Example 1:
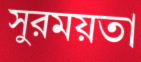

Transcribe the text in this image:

সুরময়তা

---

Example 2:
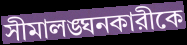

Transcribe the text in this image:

সীমালঙ্ঘনকারীকে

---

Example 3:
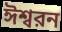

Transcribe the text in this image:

ঈশ্বরন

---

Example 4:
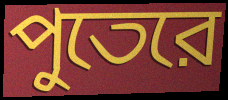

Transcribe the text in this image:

পুতেরে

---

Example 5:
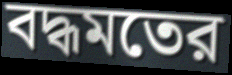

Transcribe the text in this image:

বদ্ধমতের